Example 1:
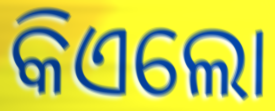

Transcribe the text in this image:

କିଏଲୋ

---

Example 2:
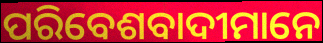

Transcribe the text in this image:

ପରିବେଶବାଦୀମାନେ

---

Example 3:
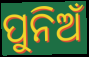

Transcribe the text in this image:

ପୁନିଅଁ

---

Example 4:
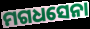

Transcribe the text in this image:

ମଗଧସେନା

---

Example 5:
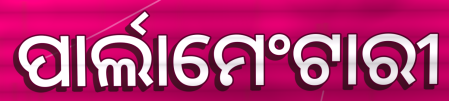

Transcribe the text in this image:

ପାର୍ଲାମେଂଟାରୀ